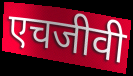
एचजीवी